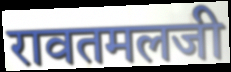
रावतमलजी